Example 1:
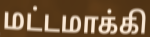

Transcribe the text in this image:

மட்டமாக்கி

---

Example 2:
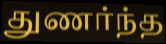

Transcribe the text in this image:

துணர்ந்த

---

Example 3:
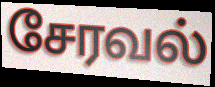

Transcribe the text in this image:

சேரவல்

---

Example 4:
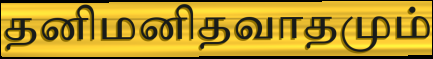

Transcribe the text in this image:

தனிமனிதவாதமும்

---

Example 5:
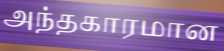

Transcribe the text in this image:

அந்தகாரமான